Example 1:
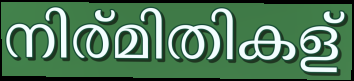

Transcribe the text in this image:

നിര്മിതികള്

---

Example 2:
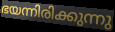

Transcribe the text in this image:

ഭയന്നിരിക്കുന്നു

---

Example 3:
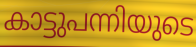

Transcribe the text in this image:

കാട്ടുപന്നിയുടെ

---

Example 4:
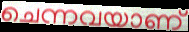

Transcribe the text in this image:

ചെന്നവയാണ്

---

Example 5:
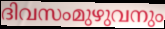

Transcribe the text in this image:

ദിവസംമുഴുവനും